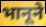
भानूने